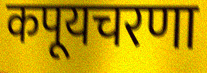
कपूयचरणा